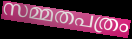
സമ്മതപത്രം